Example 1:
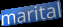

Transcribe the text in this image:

marital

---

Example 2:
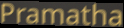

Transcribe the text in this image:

Pramatha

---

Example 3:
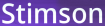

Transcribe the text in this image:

Stimson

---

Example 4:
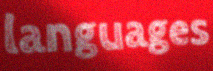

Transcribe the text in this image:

languages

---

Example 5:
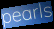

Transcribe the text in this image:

pearls